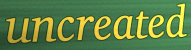
uncreated